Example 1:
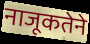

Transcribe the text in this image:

नाजूकतेने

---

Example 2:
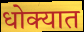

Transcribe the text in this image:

धोक्‍यात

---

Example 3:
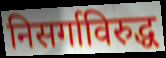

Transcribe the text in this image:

निसर्गाविरुद्ध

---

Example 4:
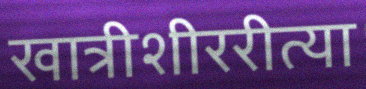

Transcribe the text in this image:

खात्रीशीररीत्या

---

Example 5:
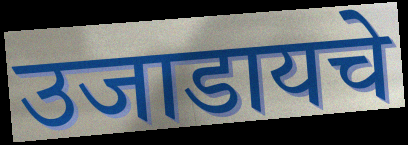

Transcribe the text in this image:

उजाडायचे